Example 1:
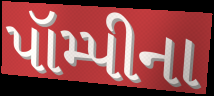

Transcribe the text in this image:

પૉમ્પીના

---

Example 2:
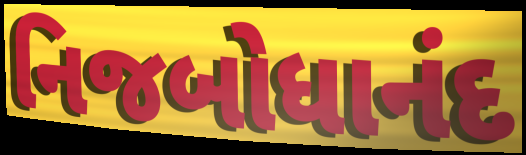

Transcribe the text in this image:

નિજબોધાનંદ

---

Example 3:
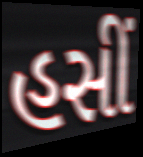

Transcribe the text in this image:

હસીં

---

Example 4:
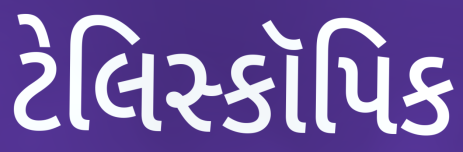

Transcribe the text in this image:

ટેલિસ્કૉપિક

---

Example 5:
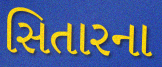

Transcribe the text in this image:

સિતારના